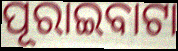
ପୂରାଇବାଟା